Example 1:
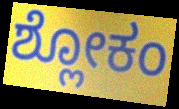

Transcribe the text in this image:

ಶ್ಲೋಕಂ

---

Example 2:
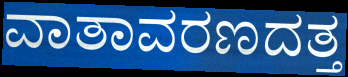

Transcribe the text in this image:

ವಾತಾವರಣದತ್ತ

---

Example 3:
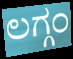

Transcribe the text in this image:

ಲಗ್ಗಂ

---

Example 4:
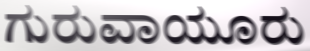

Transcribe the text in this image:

ಗುರುವಾಯೂರು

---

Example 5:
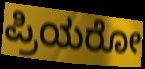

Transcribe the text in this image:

ಪ್ರಿಯರೋ